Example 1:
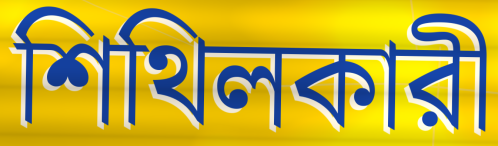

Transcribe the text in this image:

শিথিলকারী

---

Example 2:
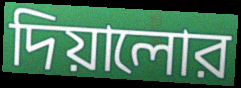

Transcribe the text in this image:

দিয়ালোর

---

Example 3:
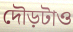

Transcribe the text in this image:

দৌড়টাও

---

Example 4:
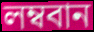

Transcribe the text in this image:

লম্ববান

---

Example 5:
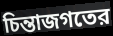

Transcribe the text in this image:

চিন্তাজগতের